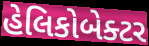
હેલિકોબેક્ટર